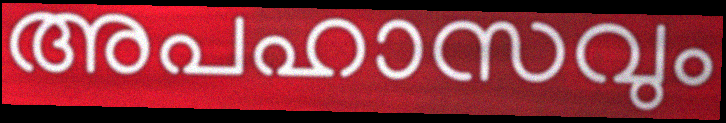
അപഹാസവും